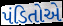
પંડિતોએ